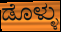
ಡೊಳ್ಳು